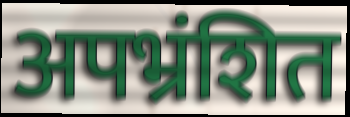
अपभ्रंशित